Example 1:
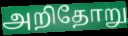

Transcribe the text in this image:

அறிதோறு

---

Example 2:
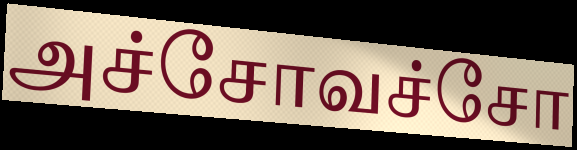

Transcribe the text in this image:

அச்சோவச்சோ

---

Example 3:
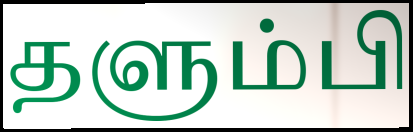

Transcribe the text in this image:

தளும்பி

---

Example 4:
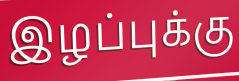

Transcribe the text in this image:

இழப்புக்கு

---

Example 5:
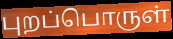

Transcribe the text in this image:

புறப்பொருள்